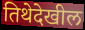
तिथेदेखील